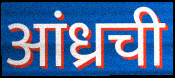
आंध्रची